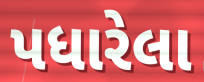
પધારેલા